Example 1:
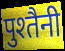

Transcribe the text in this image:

पुश्‍तैनी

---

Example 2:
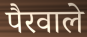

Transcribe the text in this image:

पैरवाले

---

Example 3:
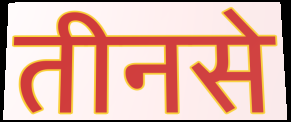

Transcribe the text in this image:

तीनसे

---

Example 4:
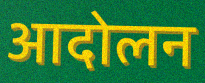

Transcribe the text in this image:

आदोलन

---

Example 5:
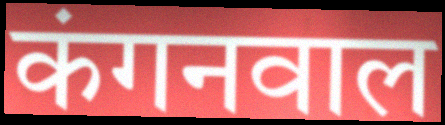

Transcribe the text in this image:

कंगनवाल